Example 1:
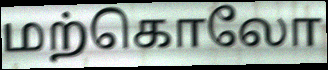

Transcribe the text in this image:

மற்கொலோ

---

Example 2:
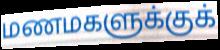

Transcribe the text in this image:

மணமகளுக்குக்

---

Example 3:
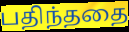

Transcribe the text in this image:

பதிந்ததை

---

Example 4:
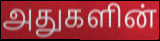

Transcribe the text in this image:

அதுகளின்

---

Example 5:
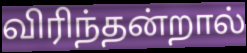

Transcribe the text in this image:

விரிந்தன்றால்